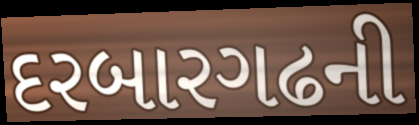
દરબારગઢની